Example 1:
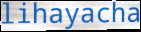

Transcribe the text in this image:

lihayacha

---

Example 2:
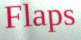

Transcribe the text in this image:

Flaps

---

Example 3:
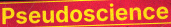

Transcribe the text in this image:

Pseudoscience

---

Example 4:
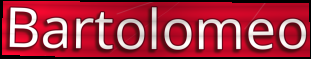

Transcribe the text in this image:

Bartolomeo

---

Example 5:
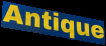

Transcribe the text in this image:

Antique